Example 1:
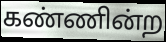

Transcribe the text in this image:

கண்ணின்ற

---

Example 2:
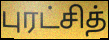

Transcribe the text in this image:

புரட்சித்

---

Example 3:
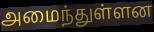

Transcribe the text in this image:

அமைந்துள்ளன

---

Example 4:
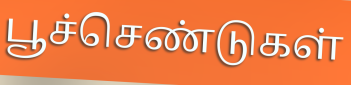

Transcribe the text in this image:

பூச்செண்டுகள்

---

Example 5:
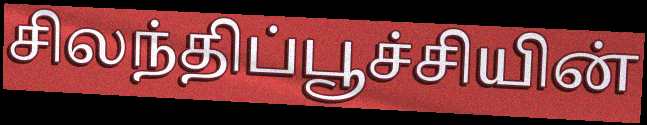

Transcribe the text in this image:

சிலந்திப்பூச்சியின்